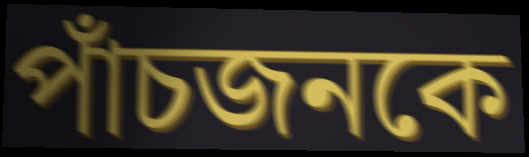
পাঁচজনকে